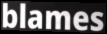
blames